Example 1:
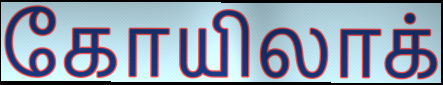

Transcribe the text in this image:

கோயிலாக்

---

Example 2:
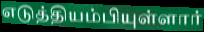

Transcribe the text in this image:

எடுத்தியம்பியுள்ளார்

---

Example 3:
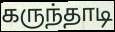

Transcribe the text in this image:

கருந்தாடி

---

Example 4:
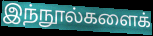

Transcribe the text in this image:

இந்நூல்களைக்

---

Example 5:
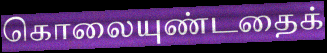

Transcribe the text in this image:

கொலையுண்டதைக்